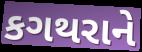
કગથરાને